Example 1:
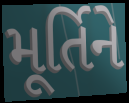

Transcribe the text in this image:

મૂર્તિને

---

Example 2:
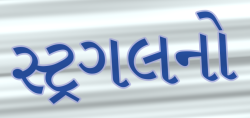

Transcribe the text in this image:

સ્ટ્રગલનો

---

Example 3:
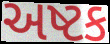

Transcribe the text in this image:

અષ્ટક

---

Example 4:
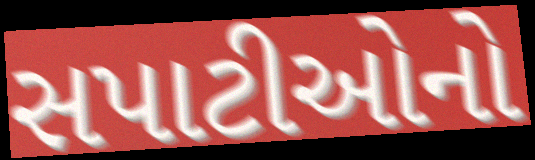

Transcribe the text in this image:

સપાટીઓનો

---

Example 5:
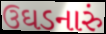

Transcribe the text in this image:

ઉઘડનારું